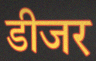
डीजर